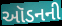
ઑડનની